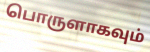
பொருளாகவும்